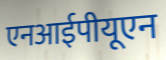
एनआईपीयूएन